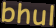
bhul